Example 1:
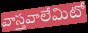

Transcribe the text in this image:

వాస్తవాలేమిటో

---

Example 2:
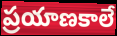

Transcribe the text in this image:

ప్రయాణకాలే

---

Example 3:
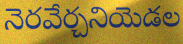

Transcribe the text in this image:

నెరవేర్చనియెడల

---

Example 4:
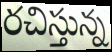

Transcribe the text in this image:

రచిస్తున్న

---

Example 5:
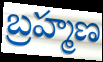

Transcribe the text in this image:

బ్రహ్మణ